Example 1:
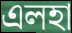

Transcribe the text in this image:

এলহা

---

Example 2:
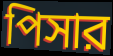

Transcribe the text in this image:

পিসার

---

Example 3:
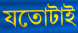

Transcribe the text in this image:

যতোটাই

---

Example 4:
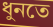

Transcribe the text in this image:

ধুনতে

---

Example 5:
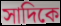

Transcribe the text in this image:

সাদিকে